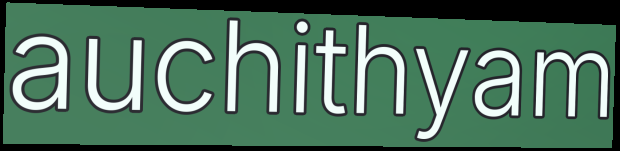
auchithyam